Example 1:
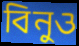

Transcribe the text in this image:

বিনুও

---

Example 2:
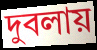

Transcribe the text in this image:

দুবলায়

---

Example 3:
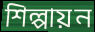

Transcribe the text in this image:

শিল্পায়ন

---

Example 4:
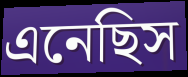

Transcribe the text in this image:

এনেছিস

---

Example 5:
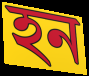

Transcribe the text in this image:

হন